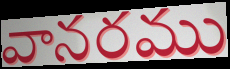
వానరము